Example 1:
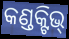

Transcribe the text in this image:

କଣ୍ଡକ୍ଟିଭ୍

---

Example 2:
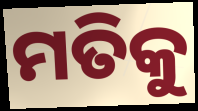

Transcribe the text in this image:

ମତିକୁ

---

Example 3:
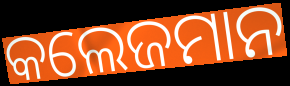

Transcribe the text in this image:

କଲେଜମାନ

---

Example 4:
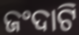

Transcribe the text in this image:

ଜଂଦାଟି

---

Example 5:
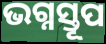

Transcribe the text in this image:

ଭଗ୍ନସ୍ତୂପ